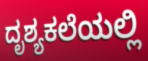
ದೃಶ್ಯಕಲೆಯಲ್ಲಿ